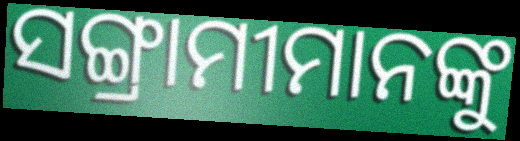
ସଙ୍ଗ୍ରାମୀମାନଙ୍କୁ